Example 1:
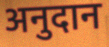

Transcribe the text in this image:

अनुदान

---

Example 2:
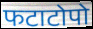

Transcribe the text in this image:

फटाटोपो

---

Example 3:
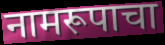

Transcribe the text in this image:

नामरूपाचा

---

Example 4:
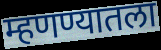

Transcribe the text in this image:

म्हणण्यातला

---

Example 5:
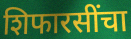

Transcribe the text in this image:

शिफारसींचा